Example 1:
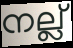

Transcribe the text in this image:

നല്ല്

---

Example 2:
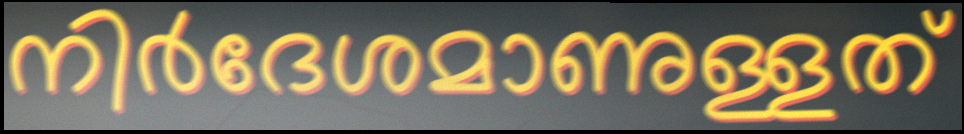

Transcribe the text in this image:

നിർദേശമാണുള്ളത്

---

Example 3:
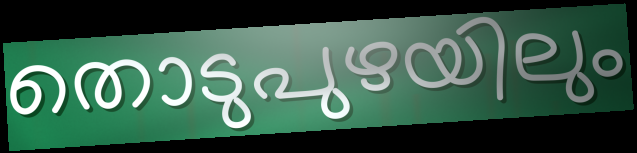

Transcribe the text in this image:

തൊടുപുഴയിലും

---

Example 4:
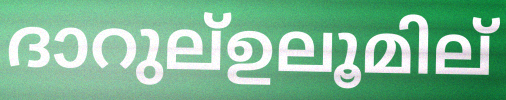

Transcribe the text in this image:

ദാറുല്ഉലൂമില്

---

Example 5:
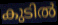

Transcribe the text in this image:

കുടിൽ